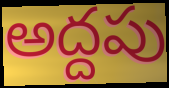
అద్దపు